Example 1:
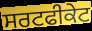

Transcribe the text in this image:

ਸਰਟਫੀਕੇਟ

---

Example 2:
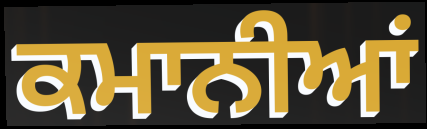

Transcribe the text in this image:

ਕਮਾਨੀਆਂ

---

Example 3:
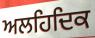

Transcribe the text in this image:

ਅਲਹਿਦਿਕ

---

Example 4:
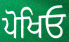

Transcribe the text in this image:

ਪੋਖਿਓ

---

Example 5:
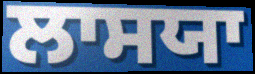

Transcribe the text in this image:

ਲਾਸਯਾ